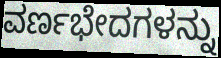
ವರ್ಣಭೇದಗಳನ್ನು